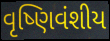
વૃષ્ણિવંશીય